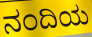
ನಂದಿಯ